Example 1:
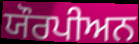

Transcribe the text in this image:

ਯੌਰਪੀਅਨ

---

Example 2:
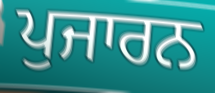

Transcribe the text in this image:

ਪੁਜਾਰਨ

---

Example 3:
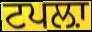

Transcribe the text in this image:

ਟਪਲ਼ਾ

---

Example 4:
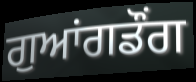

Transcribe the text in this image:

ਗੁਆਂਗਡੌਂਗ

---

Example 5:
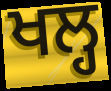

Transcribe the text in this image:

ਖਲ੍ਹ